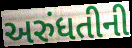
અરુંધતીની